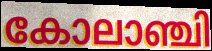
കോലാഞ്ചി